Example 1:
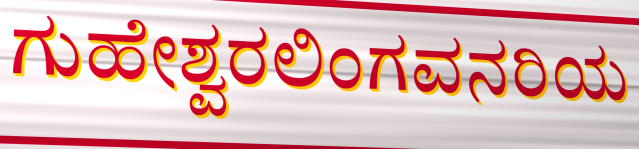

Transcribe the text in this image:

ಗುಹೇಶ್ವರಲಿಂಗವನರಿಯ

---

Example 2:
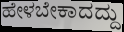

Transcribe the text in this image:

ಹೇಳಬೇಕಾದದ್ದು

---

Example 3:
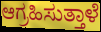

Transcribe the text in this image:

ಆಗ್ರಹಿಸುತ್ತಾಳೆ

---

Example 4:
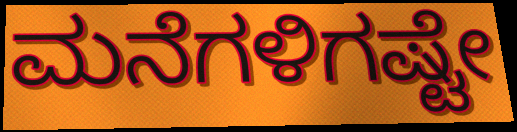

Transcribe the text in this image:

ಮನೆಗಳಿಗಷ್ಟೇ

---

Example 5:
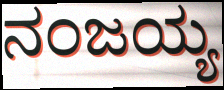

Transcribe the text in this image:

ನಂಜಯ್ಯ